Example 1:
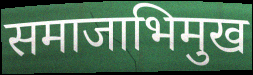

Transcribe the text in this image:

समाजाभिमुख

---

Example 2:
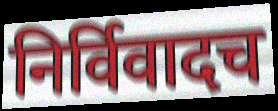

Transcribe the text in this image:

निर्विवादच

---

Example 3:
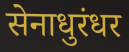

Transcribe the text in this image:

सेनाधुरंधर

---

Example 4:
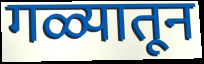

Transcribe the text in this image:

गळ्यातून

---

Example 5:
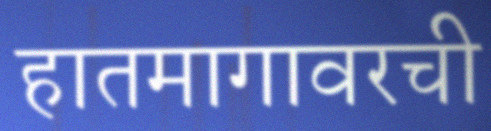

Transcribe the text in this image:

हातमागावरची